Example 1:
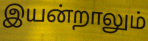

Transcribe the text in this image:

இயன்றாலும்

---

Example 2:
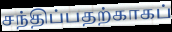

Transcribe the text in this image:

சந்திப்பதற்காகப்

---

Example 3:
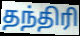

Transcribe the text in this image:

தந்திரி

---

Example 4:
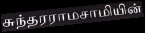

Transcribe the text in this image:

சுந்தரராமசாமியின்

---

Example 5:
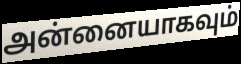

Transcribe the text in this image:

அன்னையாகவும்